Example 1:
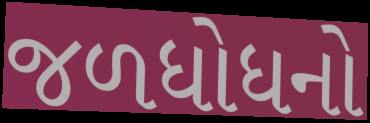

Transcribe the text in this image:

જળધોધનો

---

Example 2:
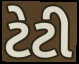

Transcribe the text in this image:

ટેટી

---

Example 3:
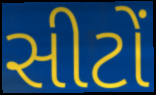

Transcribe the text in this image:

સીટોં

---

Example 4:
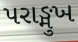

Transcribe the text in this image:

પરાઙ્મુખ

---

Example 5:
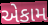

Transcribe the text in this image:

એકામ